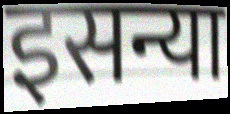
इसन्या